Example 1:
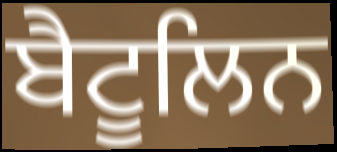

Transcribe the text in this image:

ਬੈਟੂਲਿਨ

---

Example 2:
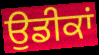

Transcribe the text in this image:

ਉਡੀਕਾਂ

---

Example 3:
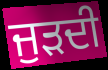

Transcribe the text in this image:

ਜੁੜਦੀ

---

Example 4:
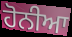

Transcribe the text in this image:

ਹੋਨੀਆ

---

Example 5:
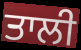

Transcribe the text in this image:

ਤਾਲੀ